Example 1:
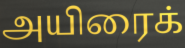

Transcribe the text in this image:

அயிரைக்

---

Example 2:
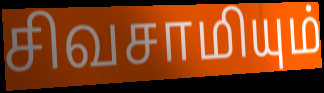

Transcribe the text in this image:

சிவசாமியும்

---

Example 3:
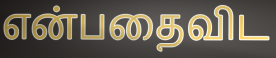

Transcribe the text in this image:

என்பதைவிட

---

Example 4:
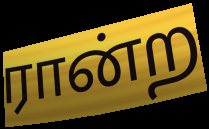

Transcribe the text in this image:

ரான்ற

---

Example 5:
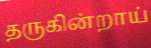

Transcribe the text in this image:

தருகின்றாய்